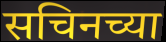
सचिनच्या